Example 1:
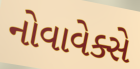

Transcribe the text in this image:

નોવાવેક્સે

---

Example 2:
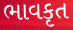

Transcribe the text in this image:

ભાવકૃત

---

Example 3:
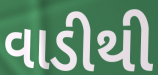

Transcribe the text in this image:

વાડીથી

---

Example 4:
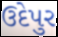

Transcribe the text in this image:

ઉદેપુર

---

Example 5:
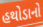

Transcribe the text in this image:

હથોડાનો